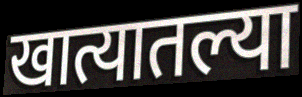
खात्यातल्या